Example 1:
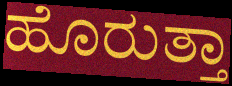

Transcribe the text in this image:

ಹೊರುತ್ತಾ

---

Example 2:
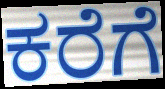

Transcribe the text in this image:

ಕರೆಗೆ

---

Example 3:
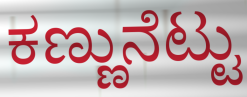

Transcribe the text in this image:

ಕಣ್ಣುನೆಟ್ಟು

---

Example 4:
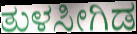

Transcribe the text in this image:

ತುಳಸೀಗಿಡ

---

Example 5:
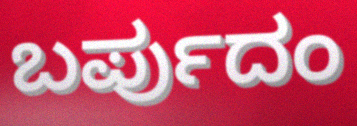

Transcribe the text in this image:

ಬರ್ಪುದಂ